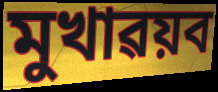
মুখাৱয়ব